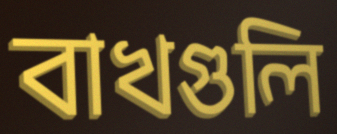
বাখগুলি